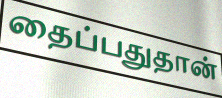
தைப்பதுதான்